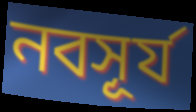
নবসূর্য